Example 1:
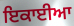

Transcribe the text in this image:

ਇਕਾਈਆ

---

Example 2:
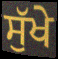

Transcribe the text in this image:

ਸੁੱਖੇ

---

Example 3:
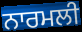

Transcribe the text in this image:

ਨਾਰਮਲੀ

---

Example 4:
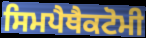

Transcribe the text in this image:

ਸਿਮਪੈਥੈਕਟੋਮੀ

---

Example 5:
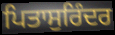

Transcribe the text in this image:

ਪਿਤਾਸੁਰਿੰਦਰ